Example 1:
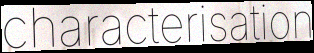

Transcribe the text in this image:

characterisation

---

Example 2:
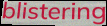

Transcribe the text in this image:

blistering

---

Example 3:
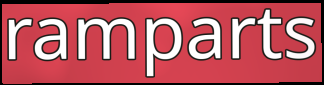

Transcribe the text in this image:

ramparts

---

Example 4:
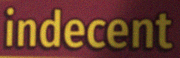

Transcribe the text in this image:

indecent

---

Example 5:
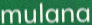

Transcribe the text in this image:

mulana